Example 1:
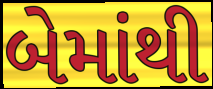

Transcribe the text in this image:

બેમાંથી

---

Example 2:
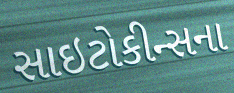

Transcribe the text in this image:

સાઇટોકીન્સના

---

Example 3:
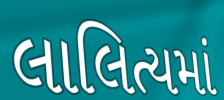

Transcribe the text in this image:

લાલિત્યમાં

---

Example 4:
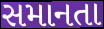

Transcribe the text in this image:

સમાનતા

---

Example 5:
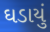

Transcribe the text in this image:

ઘડાયું